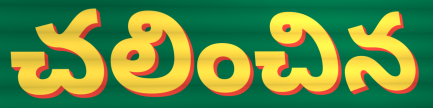
చలించిన